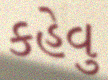
કહેવુ